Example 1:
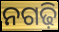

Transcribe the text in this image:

ନଗଢ଼ି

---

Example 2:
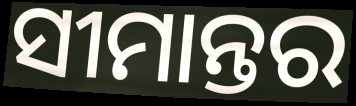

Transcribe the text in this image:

ସୀମାନ୍ତର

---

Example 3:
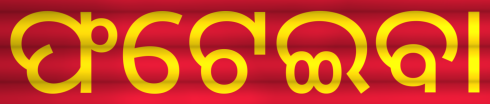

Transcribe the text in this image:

ଫଟେଇବା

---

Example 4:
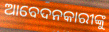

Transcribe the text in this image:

ଆବେଦନକାରୀଙ୍କୁ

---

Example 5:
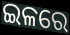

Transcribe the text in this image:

ଇଳରେ